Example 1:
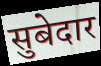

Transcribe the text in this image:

सुबेदार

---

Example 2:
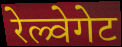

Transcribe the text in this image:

रेल्वेगेट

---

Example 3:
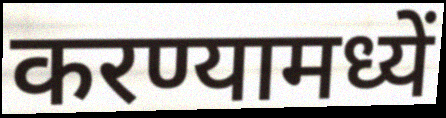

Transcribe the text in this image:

करण्यामध्यें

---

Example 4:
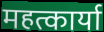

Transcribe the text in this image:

महत्कार्या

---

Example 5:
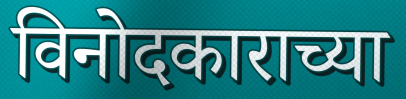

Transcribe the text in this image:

विनोदकाराच्या